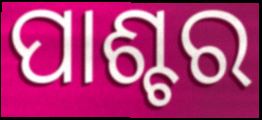
ପାଶ୍ଚର